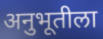
अनुभूतीला